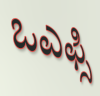
ಒಎಫ್ಸಿ